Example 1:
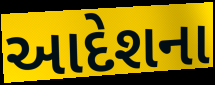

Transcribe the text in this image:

આદેશના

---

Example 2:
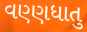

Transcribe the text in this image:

વણ્ણધાતુ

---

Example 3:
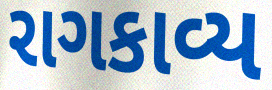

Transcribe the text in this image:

રાગકાવ્ય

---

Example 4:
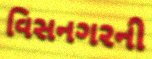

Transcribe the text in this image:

વિસનગરની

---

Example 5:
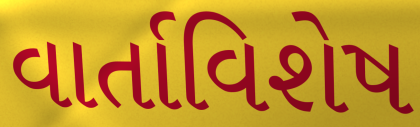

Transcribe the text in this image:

વાર્તાવિશેષ